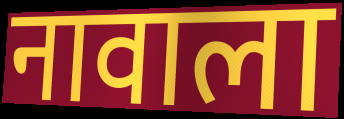
नावाला